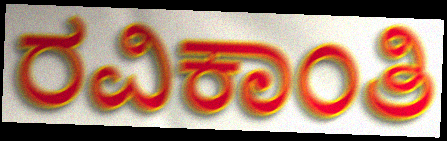
ರವಿಕಾಂತಿ